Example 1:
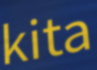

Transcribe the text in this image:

kita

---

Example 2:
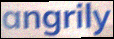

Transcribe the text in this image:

angrily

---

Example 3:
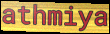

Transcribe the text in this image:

athmiya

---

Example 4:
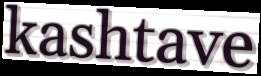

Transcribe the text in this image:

kashtave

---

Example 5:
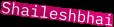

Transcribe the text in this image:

Shaileshbhai